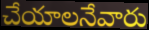
చేయాలనేవారు